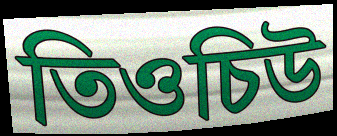
তিওচিউ